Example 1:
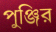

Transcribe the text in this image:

পুঞ্জির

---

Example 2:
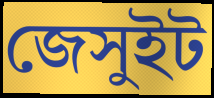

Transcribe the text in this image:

জেসুইট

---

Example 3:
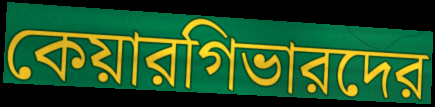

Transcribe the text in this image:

কেয়ারগিভারদের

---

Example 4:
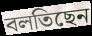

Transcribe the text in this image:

বলতিছেন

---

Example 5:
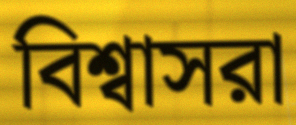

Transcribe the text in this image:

বিশ্বাসরা